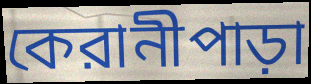
কেরানীপাড়া